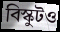
বিস্কুটও